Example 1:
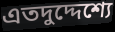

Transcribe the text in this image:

এতদুদ্দেশ্যে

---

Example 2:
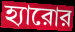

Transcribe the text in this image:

হ্যারোর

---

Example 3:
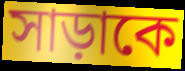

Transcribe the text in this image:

সাড়াকে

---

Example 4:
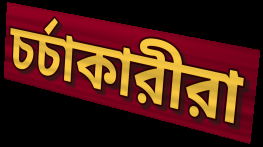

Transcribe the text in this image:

চর্চাকারীরা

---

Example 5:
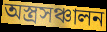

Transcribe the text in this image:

অস্ত্রসঞ্চালন